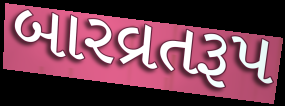
બારવ્રતરૂપ